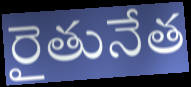
రైతునేత